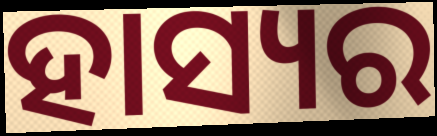
ହାସ୍ୟର